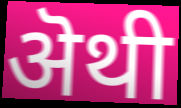
ऄथी